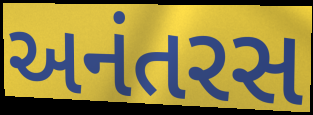
અનંતરસ